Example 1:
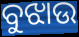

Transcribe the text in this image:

ବୁଝାଉ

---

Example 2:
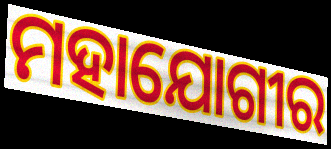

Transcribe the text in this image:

ମହାଯୋଗୀର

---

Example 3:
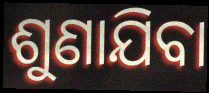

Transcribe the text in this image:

ଶୁଣାଯିବା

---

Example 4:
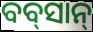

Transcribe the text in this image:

ବବ୍‌ସାନ୍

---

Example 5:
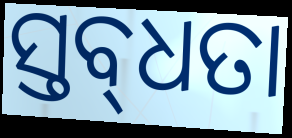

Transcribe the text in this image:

ସ୍ତବ୍‍ଧତା